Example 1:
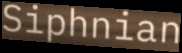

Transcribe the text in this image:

Siphnian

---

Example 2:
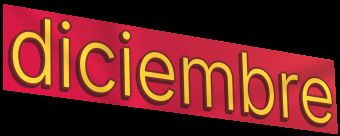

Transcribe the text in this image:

diciembre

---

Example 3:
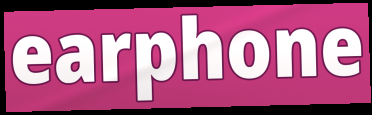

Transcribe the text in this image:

earphone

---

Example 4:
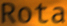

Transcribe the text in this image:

Rota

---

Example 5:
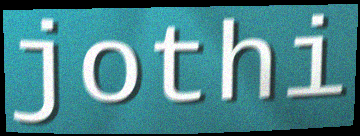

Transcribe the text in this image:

jothi